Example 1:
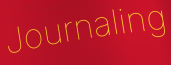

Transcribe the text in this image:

Journaling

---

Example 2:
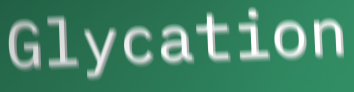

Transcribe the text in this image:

Glycation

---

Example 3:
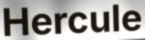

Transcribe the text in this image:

Hercule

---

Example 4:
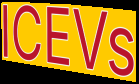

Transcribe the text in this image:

ICEVs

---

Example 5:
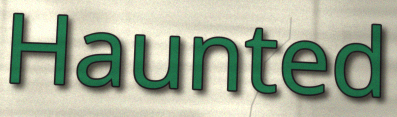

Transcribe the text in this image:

Haunted